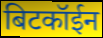
बिटकॉईन